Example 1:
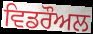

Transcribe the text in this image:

ਵਿਡਰੌਅਲ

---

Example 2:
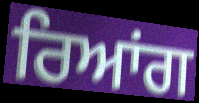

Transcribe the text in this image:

ਰਿਆਂਗ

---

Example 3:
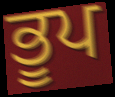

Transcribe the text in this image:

ਭੂਪ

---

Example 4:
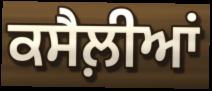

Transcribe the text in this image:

ਕਸੈਲ਼ੀਆਂ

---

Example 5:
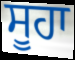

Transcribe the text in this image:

ਸੂਹਾ